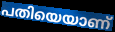
പതിയെയാണ്